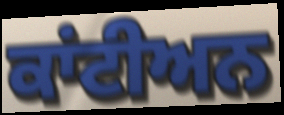
ਕਾਂਟੀਅਨ